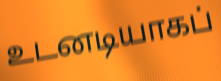
உடனடியாகப்